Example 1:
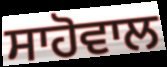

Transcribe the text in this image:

ਸਾਹੋਵਾਲ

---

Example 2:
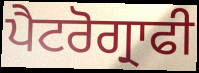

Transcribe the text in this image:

ਪੈਟਰੋਗ੍ਰਾਫੀ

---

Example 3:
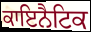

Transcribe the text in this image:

ਕਾਇਨੈਟਿਕ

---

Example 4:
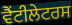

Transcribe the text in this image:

ਵੈਂਟੀਲੇਟਰਸ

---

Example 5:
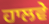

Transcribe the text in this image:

ਹਾਲਵੇ